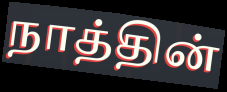
நாத்தின்